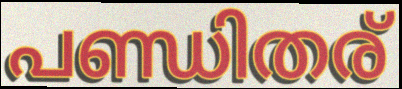
പണ്ഡിതര്